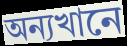
অন্যখানে